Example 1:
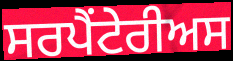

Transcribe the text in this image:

ਸਰਪੈਂਟੇਰੀਅਸ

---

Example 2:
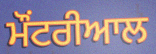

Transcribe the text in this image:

ਮੌਂਟਰੀਆਲ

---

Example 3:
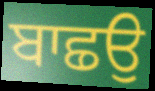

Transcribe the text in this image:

ਬਾਛਉ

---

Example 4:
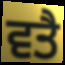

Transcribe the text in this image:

ਵਤੈ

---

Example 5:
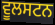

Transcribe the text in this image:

ਵੂਲਸਟਨ